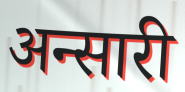
अन्सारी